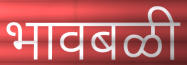
भावबळी